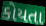
કોયતા